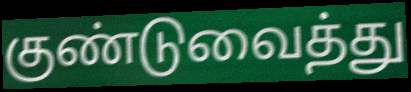
குண்டுவைத்து